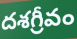
దశగ్రీవం